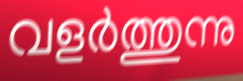
വളർത്തുന്നു